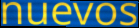
nuevos